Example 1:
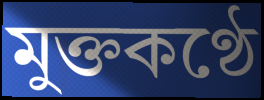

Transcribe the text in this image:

মুক্তকণ্ঠে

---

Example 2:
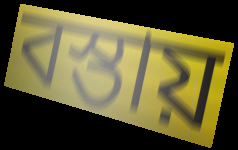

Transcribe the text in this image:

বস্তায়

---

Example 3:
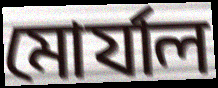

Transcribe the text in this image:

মোর্যাল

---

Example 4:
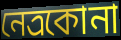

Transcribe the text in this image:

নেত্রকোনা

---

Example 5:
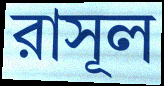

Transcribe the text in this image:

রাসূল